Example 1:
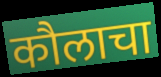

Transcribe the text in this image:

कौलाचा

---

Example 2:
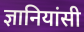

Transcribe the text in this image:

ज्ञानियांसी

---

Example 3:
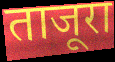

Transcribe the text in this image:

ताजूरा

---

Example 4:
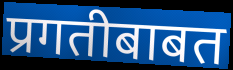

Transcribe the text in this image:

प्रगतीबाबत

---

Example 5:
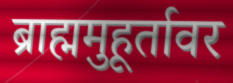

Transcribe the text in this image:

ब्राह्ममुहूर्तावर